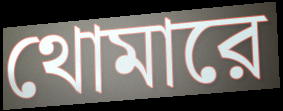
থোমারে